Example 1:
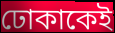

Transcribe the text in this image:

ঢোকাকেই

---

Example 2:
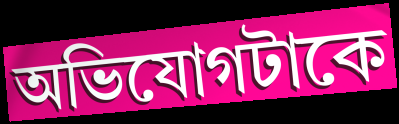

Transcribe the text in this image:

অভিযোগটাকে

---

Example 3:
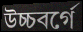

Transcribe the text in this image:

উচ্চবর্গে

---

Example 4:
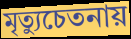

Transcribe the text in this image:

মৃত্যুচেতনায়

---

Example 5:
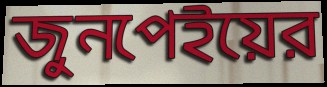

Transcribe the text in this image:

জুনপেইয়ের